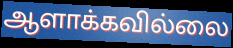
ஆளாக்கவில்லை